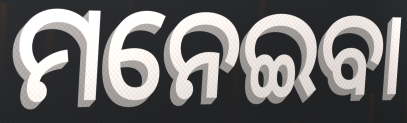
ମନେଇବା